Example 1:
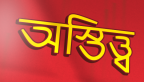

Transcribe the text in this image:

অস্তিত্ত্ব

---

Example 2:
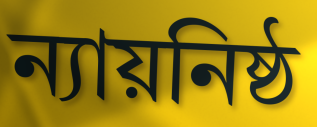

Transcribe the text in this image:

ন্যায়নিষ্ঠ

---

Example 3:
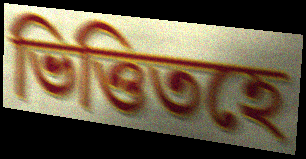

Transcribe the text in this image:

ভিত্তিতহে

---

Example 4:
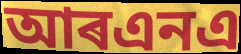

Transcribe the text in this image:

আৰএনএ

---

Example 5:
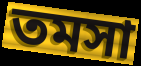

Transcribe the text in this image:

তমসা